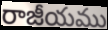
రాజీయము